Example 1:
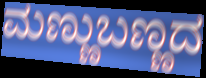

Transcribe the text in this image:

ಮಣ್ಣುಬಣ್ಣದ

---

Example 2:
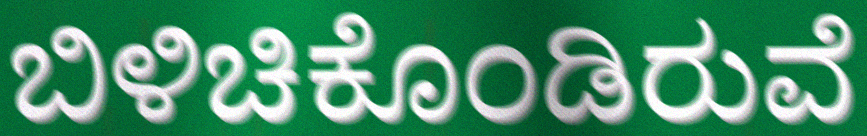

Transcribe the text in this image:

ಬಿಳಿಚಿಕೊಂಡಿರುವೆ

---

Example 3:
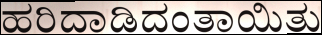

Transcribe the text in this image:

ಹರಿದಾಡಿದಂತಾಯಿತು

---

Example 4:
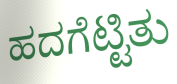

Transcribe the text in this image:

ಹದಗೆಟ್ಟಿತು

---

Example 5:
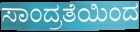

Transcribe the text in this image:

ಸಾಂದ್ರತೆಯಿಂದ